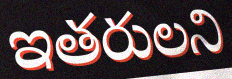
ఇతరులని